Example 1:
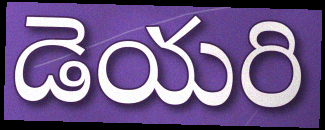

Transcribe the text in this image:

డెయరి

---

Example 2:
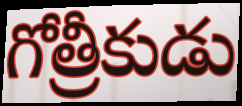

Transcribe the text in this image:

గోత్రీకుడు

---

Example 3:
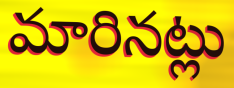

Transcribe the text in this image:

మారినట్లు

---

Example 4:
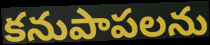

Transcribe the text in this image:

కనుపాపలను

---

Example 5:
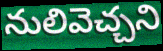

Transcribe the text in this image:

నులివెచ్చని